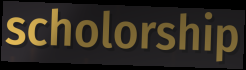
scholorship